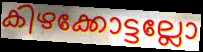
കിഴക്കോട്ടല്ലോ